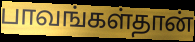
பாவங்கள்தான்